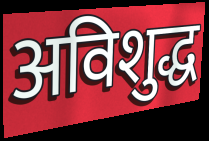
अविशुद्ध